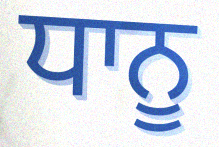
ਧਾਨੂ